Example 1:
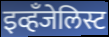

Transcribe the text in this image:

इव्हँजेलिस्ट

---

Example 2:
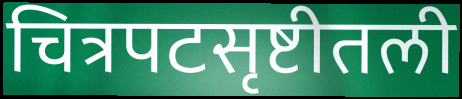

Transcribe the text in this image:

चित्रपटसृष्टीतली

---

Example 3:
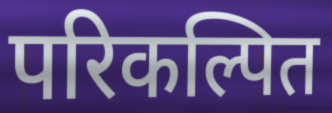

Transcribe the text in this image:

परिकल्पित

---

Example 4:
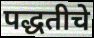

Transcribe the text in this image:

पद्धतीचे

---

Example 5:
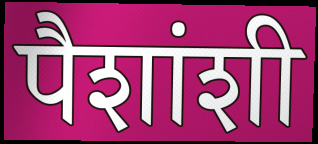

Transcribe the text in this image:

पैशांशी